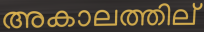
അകാലത്തില്